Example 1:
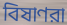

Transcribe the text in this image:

বিষাণরা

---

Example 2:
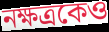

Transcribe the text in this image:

নক্ষত্রকেও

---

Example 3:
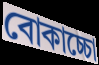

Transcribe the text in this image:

বোকাচ্চো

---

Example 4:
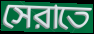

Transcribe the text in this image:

সেরাতে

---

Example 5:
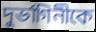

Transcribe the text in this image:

দুর্ভাগিনীকে